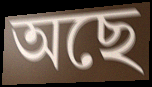
অছে